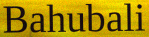
Bahubali